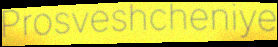
Prosveshcheniye